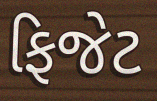
ફિજેટ